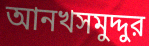
আনখসমুদ্দুর